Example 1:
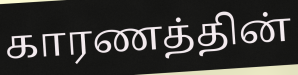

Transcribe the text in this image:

காரணத்தின்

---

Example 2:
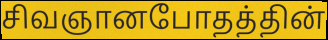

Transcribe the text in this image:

சிவஞானபோதத்தின்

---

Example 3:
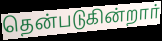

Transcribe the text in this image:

தென்படுகின்றார்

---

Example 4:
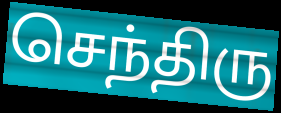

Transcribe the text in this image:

செந்திரு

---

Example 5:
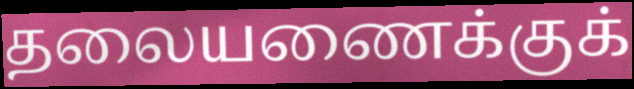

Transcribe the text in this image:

தலையணைக்குக்